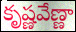
కృష్ణవేణ్ణా